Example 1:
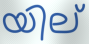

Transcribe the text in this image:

യില്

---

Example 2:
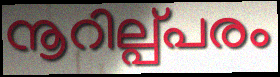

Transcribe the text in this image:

നൂറില്പ്പരം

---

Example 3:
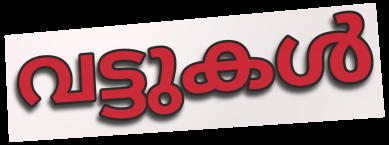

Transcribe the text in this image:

വട്ടുകൾ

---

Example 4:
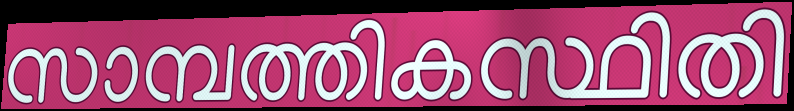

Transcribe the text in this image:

സാമ്പത്തികസ്ഥിതി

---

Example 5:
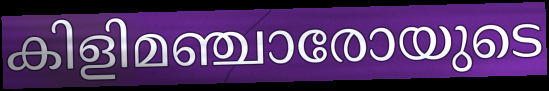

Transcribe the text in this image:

കിളിമഞ്ചാരോയുടെ